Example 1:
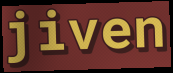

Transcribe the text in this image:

jiven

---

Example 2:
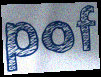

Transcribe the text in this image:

pof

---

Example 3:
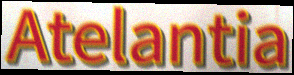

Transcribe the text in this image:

Atelantia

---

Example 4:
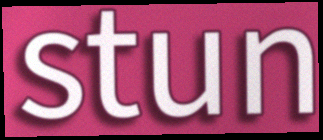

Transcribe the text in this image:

stun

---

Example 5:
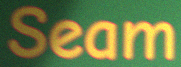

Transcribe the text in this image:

Seam